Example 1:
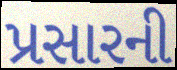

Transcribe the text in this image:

પ્રસારની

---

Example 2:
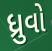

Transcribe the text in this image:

ધ્રુવો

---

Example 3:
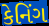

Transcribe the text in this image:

કેનિંગ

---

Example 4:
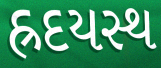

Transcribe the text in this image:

હ્રદયસ્થ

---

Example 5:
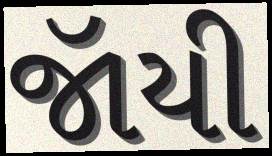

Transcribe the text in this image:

જૉયી